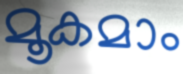
മൂകമാം